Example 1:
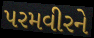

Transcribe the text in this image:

પરમવીરને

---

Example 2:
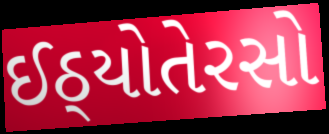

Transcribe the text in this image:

ઈઠ્યોતેરસો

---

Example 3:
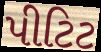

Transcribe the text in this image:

પીટિટ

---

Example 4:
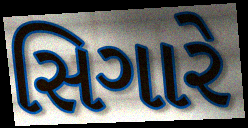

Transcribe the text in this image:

સિગારે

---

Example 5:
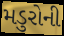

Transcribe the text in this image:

મડુરોની